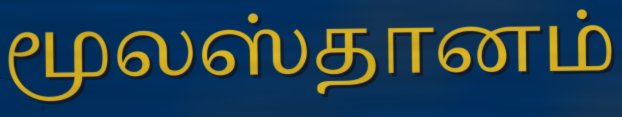
மூலஸ்தானம்